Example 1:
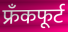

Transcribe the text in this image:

फ्रँकफूर्ट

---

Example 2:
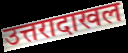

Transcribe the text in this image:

उत्तरादाखल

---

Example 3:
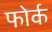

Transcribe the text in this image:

फोर्क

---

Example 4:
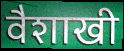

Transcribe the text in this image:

वैशाखी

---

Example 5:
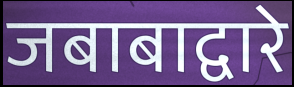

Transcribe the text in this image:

जबाबाद्वारे